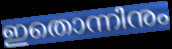
ഇതൊന്നിനും